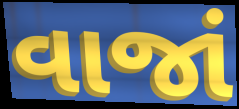
વાજાં